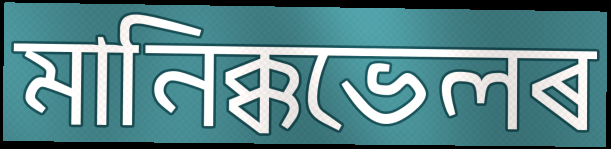
মানিক্কভেলৰ